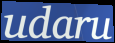
udaru